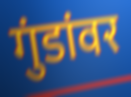
गुंडांवर